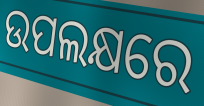
ଉପଲକ୍ଷରେ